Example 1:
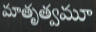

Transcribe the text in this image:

మాతృత్వమూ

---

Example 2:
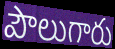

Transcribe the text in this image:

పౌలుగారు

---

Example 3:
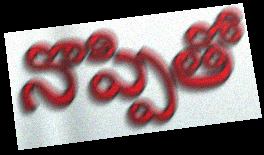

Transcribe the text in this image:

నొప్పితో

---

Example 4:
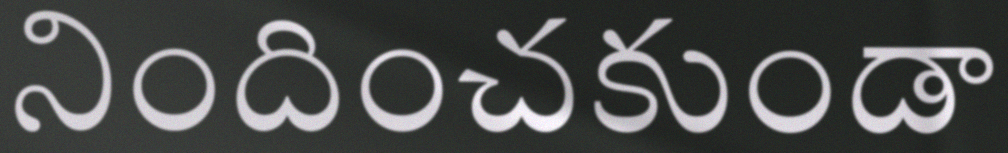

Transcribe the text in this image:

నిందించకుండా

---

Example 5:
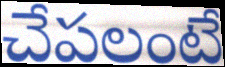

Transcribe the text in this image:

చేపలంటే